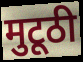
मुटूठी